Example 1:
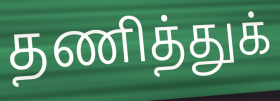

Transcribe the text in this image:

தணித்துக்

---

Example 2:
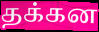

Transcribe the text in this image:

தக்கன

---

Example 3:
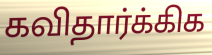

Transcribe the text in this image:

கவிதார்க்கிக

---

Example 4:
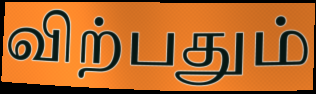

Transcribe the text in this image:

விற்பதும்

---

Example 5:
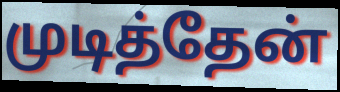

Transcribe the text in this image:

முடித்தேன்